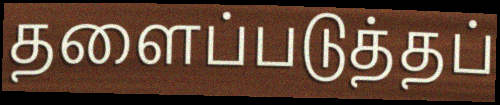
தளைப்படுத்தப்